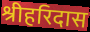
श्रीहरिदास